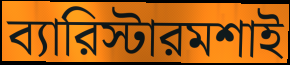
ব্যারিস্টারমশাই